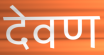
देवण